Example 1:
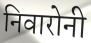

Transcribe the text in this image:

निवारोनी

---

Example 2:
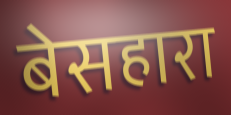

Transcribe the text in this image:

बेसहारा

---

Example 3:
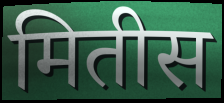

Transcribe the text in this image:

मितीस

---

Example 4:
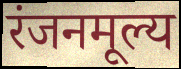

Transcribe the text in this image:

रंजनमूल्य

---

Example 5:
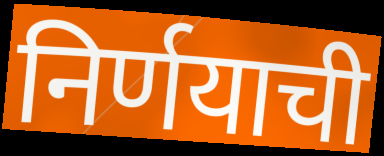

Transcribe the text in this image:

निर्णयाची